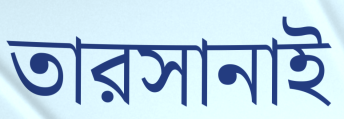
তারসানাই